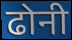
ढोनी